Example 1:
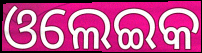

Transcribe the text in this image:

ଓଲେଇକ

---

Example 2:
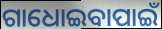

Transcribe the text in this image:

ଗାଧୋଇବାପାଇଁ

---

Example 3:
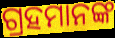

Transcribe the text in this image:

ଗ୍ରହମାନଙ୍କ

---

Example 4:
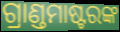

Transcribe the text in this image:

ଗ୍ରାଣ୍ଡମାଷ୍ଟରଙ୍କ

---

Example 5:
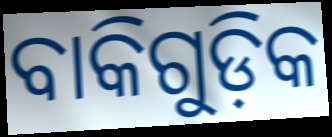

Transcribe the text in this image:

ବାକିଗୁଡ଼ିକ